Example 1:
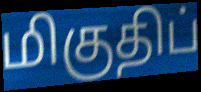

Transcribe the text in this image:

மிகுதிப்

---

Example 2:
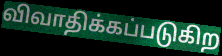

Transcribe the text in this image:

விவாதிக்கப்படுகிற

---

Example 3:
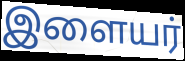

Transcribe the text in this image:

இளையர்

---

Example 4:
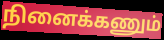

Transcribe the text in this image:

நினைக்கணும்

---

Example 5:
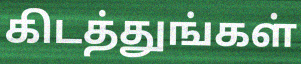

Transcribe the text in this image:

கிடத்துங்கள்